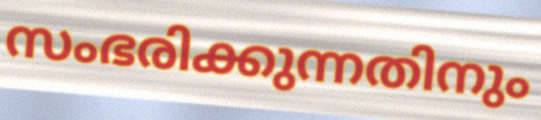
സംഭരിക്കുന്നതിനും